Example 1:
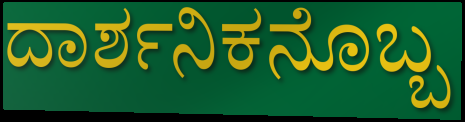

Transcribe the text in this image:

ದಾರ್ಶನಿಕನೊಬ್ಬ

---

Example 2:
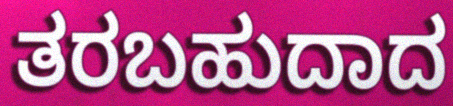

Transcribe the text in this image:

ತರಬಹುದಾದ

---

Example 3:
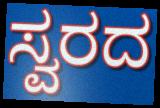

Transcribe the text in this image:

ಸ್ವರದ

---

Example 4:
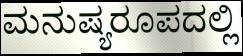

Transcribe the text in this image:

ಮನುಷ್ಯರೂಪದಲ್ಲಿ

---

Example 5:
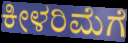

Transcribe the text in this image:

ಕೀಳರಿಮೆಗೆ